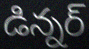
డిన్నర్